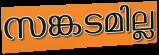
സങ്കടമില്ല